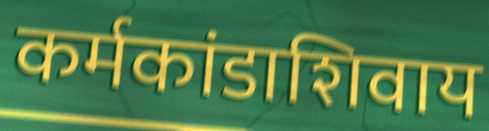
कर्मकांडाशिवाय